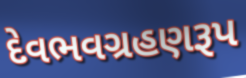
દેવભવગ્રહણરૂપ